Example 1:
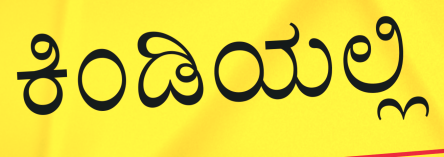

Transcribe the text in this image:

ಕಿಂಡಿಯಲ್ಲಿ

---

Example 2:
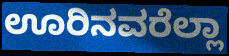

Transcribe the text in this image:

ಊರಿನವರೆಲ್ಲಾ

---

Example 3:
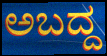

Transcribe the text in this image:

ಅಬದ್ದ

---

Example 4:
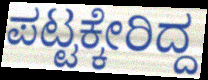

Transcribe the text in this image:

ಪಟ್ಟಕ್ಕೇರಿದ್ದ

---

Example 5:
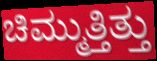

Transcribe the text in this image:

ಚಿಮ್ಮುತ್ತಿತ್ತು